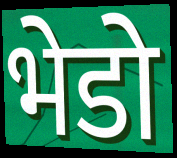
भेडो